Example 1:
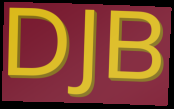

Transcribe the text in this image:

DJB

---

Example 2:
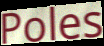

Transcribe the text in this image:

Poles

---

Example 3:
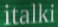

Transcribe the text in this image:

italki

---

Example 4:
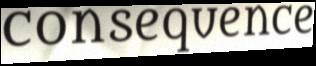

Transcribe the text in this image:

consequence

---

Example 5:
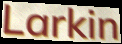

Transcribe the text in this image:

Larkin